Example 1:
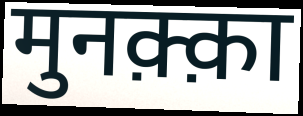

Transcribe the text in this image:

मुनक़्क़ा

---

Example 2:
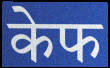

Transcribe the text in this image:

केफ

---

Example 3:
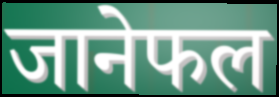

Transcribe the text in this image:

जानेफल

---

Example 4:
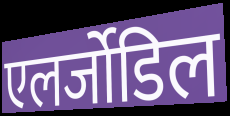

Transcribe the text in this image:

एलर्जोडिल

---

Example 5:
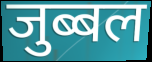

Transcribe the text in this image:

जुब्बल